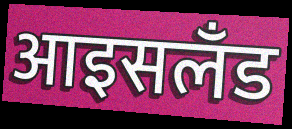
आइसलँड